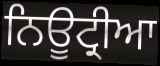
ਨਿਊਟ੍ਰੀਆ